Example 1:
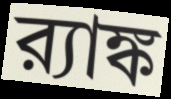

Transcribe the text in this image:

র‍্যাঙ্ক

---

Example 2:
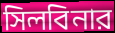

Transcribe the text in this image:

সিলবিনার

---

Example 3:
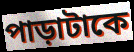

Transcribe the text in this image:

পাড়াটাকে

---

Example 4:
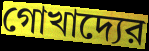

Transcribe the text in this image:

গোখাদ্যের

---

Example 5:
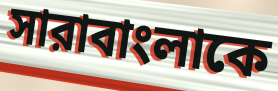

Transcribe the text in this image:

সারাবাংলাকে